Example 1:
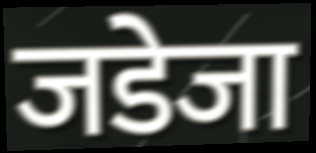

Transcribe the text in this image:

जडेजा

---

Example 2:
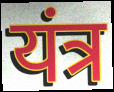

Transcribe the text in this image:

यंत्र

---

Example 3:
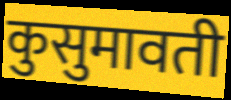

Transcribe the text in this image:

कुसुमावती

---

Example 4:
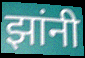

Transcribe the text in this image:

झांनी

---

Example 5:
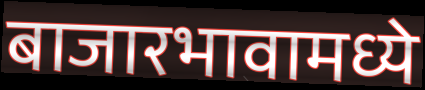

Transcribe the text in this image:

बाजारभावामध्ये